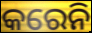
କରେନି